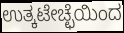
ಉತ್ಕಟೇಚ್ಛೆಯಿಂದ